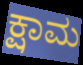
ಕ್ಷಾಮ